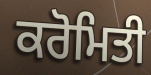
ਕਰੋਮਿਤੀ